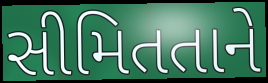
સીમિતતાને